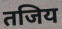
तजिय